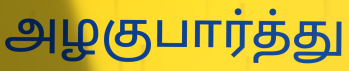
அழகுபார்த்து